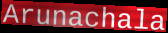
Arunachala